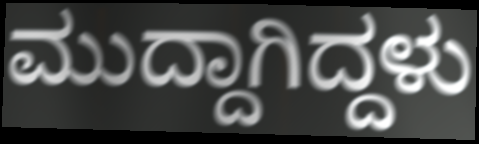
ಮುದ್ದಾಗಿದ್ದಳು